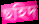
ছহিদ